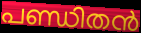
പണ്ഡിതൻ